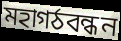
মহাগঠবন্ধন